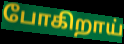
போகிறாய்